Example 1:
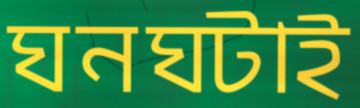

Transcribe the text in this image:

ঘনঘটাই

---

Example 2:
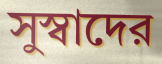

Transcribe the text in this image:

সুস্বাদের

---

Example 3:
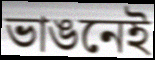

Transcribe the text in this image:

ভাঙনেই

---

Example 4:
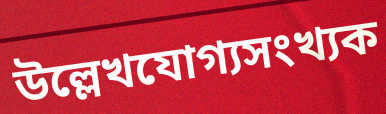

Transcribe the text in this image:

উল্লেখযোগ্যসংখ্যক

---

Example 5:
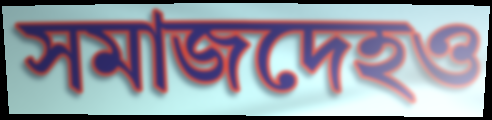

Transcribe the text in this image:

সমাজদেহও